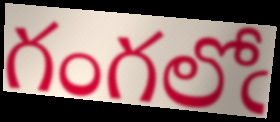
గంగలోఁ